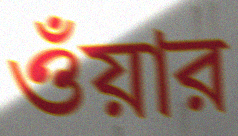
ওঁয়ার